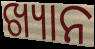
ଖ୍ୟାନ